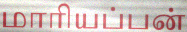
மாரியப்பன்